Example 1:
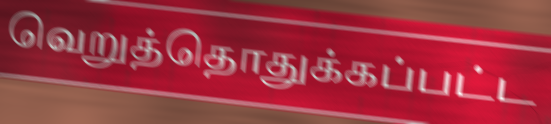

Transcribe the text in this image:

வெறுத்தொதுக்கப்பட்ட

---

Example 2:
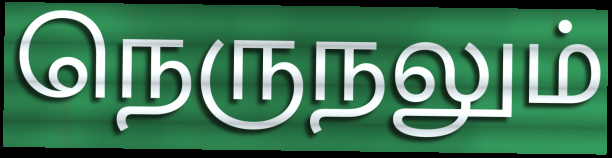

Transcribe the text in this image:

நெருநலும்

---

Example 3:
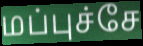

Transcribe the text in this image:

மப்புச்சே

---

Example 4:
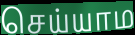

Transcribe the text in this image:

செய்யாம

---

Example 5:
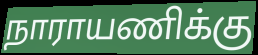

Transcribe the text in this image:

நாராயணிக்கு